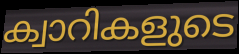
ക്വാറികളുടെ